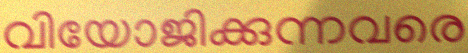
വിയോജിക്കുന്നവരെ